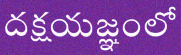
దక్షయజ్ఞంలో